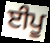
ਈਪੂ